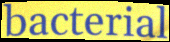
bacterial